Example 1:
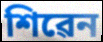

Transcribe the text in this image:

শিৱেন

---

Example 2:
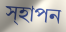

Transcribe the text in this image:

স্হাপন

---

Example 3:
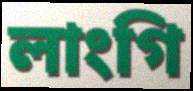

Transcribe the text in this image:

লাংগি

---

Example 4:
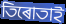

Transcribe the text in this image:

তিৰোতাই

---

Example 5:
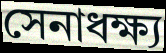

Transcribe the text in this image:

সেনাধক্ষ্য